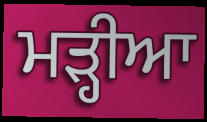
ਮੜ੍ਹੀਆ